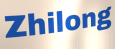
Zhilong